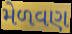
મેળવણ